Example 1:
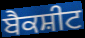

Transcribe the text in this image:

ਬੈਕਸ਼ੀਟ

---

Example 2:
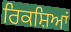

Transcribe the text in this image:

ਰਿਕਸ਼ਿਆਂ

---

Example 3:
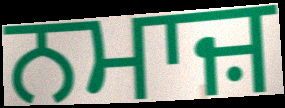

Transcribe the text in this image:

ਨਮਾਜ਼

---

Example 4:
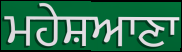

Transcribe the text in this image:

ਮਹੇਸ਼ਆਣਾ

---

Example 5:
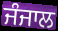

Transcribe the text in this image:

ਜੰਜਾਲ